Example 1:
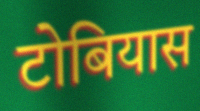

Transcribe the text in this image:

टोबियास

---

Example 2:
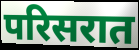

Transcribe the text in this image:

परिसरात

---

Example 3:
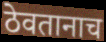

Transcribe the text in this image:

ठेवतानाच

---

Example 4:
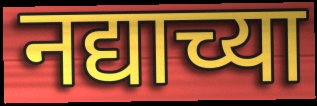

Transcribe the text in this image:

नद्याच्या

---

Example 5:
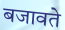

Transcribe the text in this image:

बजावते